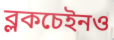
ব্লকচেইনও